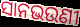
ସାନଭଉଣୀ